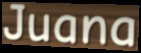
Juana